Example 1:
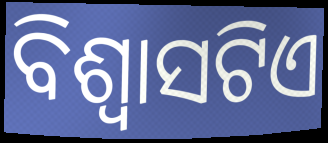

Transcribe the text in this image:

ବିଶ୍ଵାସଟିଏ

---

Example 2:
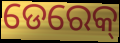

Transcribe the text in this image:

ଡେରେକ୍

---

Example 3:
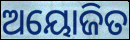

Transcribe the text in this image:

ଅୟୋଜିତ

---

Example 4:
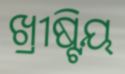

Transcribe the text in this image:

ଖ୍ରୀଷ୍ଟିୟ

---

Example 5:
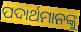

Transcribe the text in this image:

ପଦାର୍ଥମାନଙ୍କୁ